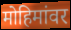
मोहिमांवर